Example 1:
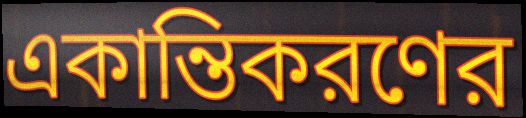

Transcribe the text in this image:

একান্তিকরণের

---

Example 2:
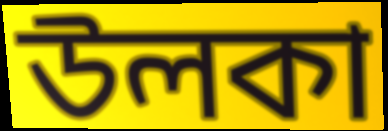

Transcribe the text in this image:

উলকা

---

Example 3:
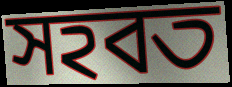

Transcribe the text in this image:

সহবত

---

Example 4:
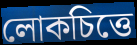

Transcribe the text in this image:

লোকচিত্তে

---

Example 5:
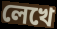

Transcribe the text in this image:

লেখে